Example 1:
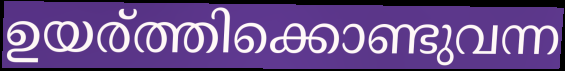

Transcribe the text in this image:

ഉയര്ത്തിക്കൊണ്ടുവന്ന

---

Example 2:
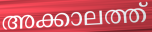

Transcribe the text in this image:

അക്കാലത്ത്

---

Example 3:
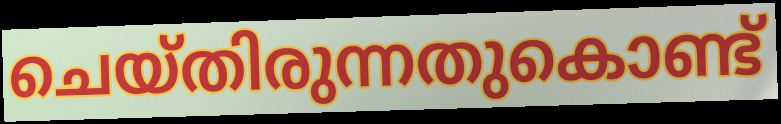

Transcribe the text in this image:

ചെയ്തിരുന്നതുകൊണ്ട്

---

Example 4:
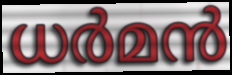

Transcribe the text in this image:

ധർമൻ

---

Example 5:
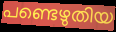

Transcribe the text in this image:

പണ്ടെഴുതിയ